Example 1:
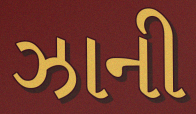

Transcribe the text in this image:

ઝાની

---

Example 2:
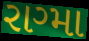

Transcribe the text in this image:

રાગ્મા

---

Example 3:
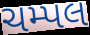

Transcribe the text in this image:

ચમ્પલ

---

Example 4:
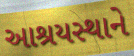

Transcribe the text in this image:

આશ્રયસ્થાને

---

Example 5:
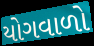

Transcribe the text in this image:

યોગવાળો